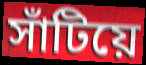
সাঁটিয়ে